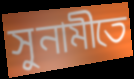
সুনামীতে